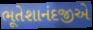
ભૂતેશાનંદજીએ